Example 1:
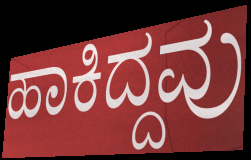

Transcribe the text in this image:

ಹಾಕಿದ್ದವು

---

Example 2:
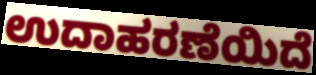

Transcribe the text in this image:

ಉದಾಹರಣೆಯಿದೆ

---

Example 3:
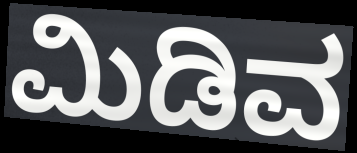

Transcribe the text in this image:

ಮಿಡಿವ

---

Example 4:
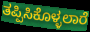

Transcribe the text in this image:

ತಪ್ಪಿಸಿಕೊಳ್ಳಲಾರೆ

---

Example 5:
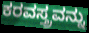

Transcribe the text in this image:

ಕರವಸ್ತ್ರವನ್ನು